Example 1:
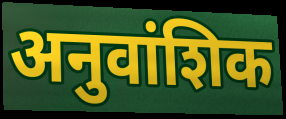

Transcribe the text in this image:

अनुवांशिक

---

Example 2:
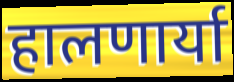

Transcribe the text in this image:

हालणार्या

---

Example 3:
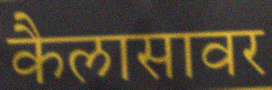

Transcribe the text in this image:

कैलासावर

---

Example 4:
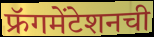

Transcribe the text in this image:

फ्रॅगमेंटेशनची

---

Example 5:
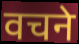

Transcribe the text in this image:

वचने